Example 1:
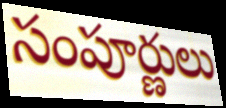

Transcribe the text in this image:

సంపూర్ణులు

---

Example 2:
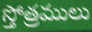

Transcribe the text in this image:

స్తోత్రములు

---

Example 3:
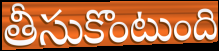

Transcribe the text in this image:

తీసుకొంటుంది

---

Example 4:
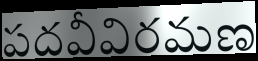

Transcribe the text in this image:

పదవీవిరమణ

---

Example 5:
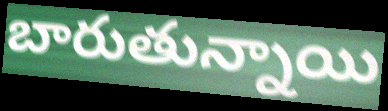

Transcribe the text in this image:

బారుతున్నాయి